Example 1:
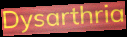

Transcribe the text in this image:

Dysarthria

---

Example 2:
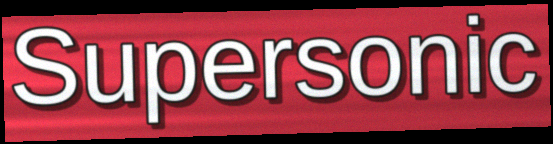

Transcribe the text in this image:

Supersonic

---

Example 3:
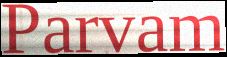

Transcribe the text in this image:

Parvam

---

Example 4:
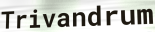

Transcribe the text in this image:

Trivandrum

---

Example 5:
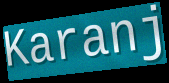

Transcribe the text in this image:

Karanj